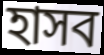
হাসব